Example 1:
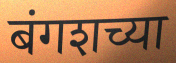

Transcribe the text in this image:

बंगशच्या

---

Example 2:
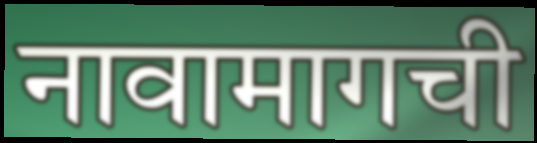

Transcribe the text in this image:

नावामागची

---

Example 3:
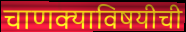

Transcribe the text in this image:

चाणक्याविषयीची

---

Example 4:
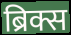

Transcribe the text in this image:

ब्रिक्स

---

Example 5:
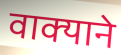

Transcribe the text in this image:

वाक्याने